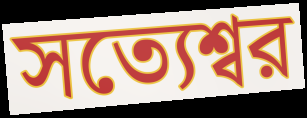
সত্যেশ্বর